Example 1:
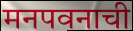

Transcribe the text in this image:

मनपवनाची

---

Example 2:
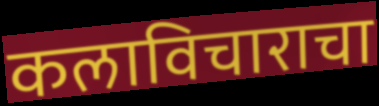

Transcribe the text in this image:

कलाविचाराचा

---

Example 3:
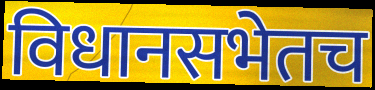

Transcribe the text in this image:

विधानसभेतच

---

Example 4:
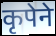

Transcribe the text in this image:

कृपेने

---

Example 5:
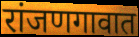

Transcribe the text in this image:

रांजणगावात